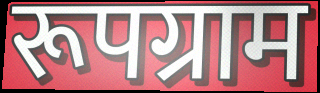
रूपग्राम